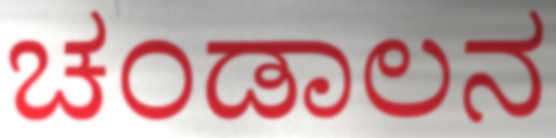
ಚಂಡಾಲನ